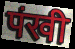
पंखी